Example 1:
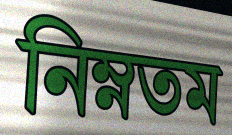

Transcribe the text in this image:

নিম্নতম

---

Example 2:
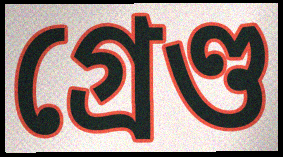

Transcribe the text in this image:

গ্ৰেণ্ড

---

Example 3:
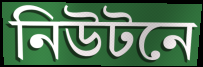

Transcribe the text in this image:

নিউটনে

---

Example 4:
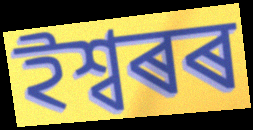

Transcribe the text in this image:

ইশ্বৰৰ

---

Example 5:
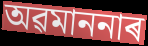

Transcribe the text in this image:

অৱমাননাৰ